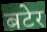
बटेर